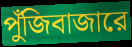
পুঁজিবাজারে